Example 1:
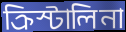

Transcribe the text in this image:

ক্রিস্টালিনা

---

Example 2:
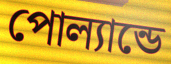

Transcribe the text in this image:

পোল্যান্ডে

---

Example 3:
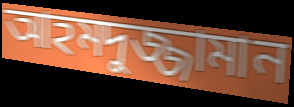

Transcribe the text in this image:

আহমদুজ্জামান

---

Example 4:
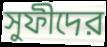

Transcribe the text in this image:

সুফীদের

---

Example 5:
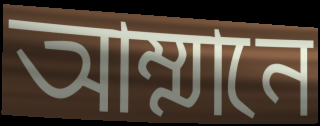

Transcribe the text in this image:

আম্মানে